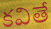
కవితే